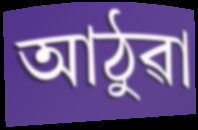
আঠুৱা